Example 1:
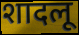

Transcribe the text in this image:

शादलू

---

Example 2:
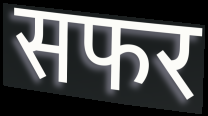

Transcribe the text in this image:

सफर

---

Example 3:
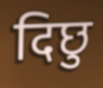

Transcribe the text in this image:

दिछु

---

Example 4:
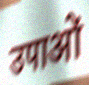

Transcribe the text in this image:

उपाओं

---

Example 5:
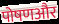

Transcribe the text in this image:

पोषणऔर